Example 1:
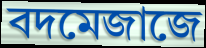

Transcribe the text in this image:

বদমেজাজে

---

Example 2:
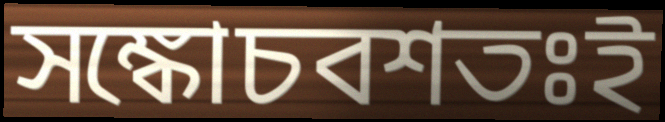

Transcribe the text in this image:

সঙ্কোচবশতঃই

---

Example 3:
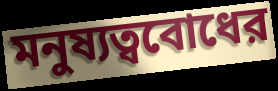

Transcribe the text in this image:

মনুষ্যত্ববোধের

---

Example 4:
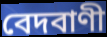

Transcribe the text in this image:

বেদবাণী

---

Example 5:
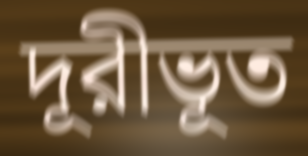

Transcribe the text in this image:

দূরীভূত